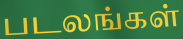
படலங்கள்